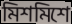
মিশমিশে